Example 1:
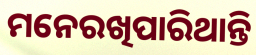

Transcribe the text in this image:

ମନେରଖିପାରିଥାନ୍ତି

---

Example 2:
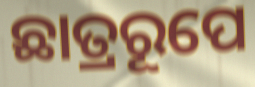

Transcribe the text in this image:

ଛାତ୍ରରୂପେ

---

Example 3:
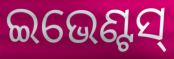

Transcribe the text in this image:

ଇଭେଣ୍ଟସ୍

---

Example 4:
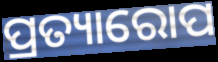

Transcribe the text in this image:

ପ୍ରତ୍ୟାରୋପ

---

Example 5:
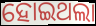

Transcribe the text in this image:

ହୋଇଥଲା